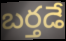
బర్తడే